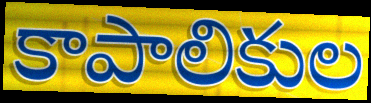
కాపాలికుల